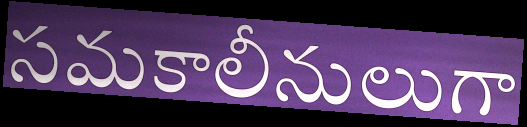
సమకాలీనులుగా